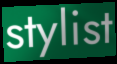
stylist